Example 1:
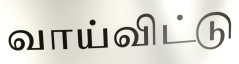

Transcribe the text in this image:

வாய்விட்டு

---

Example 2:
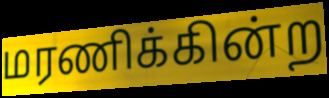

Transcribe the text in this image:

மரணிக்கின்ற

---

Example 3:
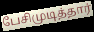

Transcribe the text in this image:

பேசிமுடித்தார்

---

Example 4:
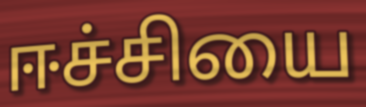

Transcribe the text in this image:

ஈச்சியை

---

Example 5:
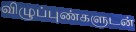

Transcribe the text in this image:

விழுப்புண்களுடன்